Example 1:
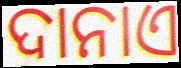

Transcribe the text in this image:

ଦାନାଏ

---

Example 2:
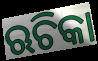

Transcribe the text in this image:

ଋଚିକା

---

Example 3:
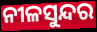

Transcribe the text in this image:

ନୀଳସୁନ୍ଦର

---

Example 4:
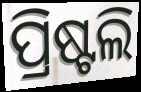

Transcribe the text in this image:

ପ୍ରିଷ୍ଟଲି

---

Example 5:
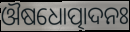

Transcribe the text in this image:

ଔଷଧୋତ୍ପାଦନଃ